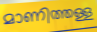
മാണിത്തള്ള